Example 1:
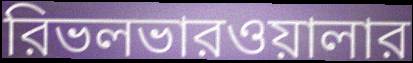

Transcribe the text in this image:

রিভলভারওয়ালার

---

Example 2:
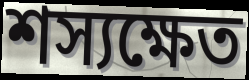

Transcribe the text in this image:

শস্যক্ষেত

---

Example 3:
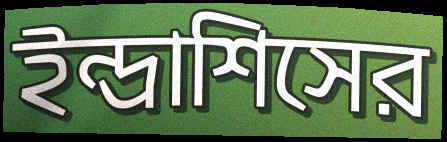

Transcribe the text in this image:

ইন্দ্রাশিসের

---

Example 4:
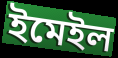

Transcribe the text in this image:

ইমেইল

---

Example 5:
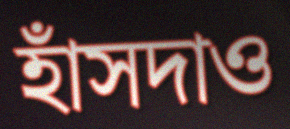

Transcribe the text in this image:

হাঁসদাও